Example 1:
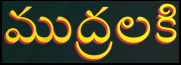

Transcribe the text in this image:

ముద్రలకి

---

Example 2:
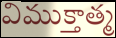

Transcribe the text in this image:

విముక్తాత్మ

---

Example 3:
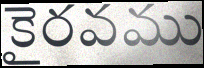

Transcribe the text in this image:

కైరవము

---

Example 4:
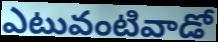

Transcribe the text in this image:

ఎటువంటివాడో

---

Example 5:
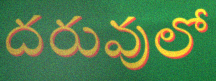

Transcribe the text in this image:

దరువులో